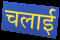
चलाई